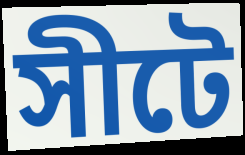
সীটে